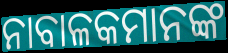
ନାବାଳକମାନଙ୍କ